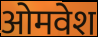
ओमवेश